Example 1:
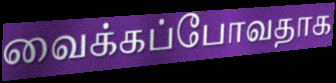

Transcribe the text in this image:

வைக்கப்போவதாக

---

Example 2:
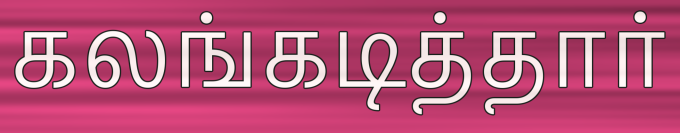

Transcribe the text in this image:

கலங்கடித்தார்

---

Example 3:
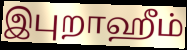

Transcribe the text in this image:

இபுறாஹீம்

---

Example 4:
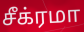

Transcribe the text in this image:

சீக்ரமா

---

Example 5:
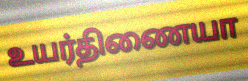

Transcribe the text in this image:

உயர்திணையா